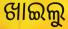
ଖାଇଲୁ